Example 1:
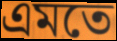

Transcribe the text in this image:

এমতে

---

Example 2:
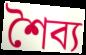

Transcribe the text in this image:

শৈব্য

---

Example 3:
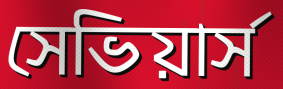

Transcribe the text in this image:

সেভিয়ার্স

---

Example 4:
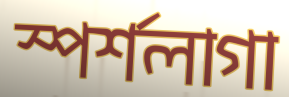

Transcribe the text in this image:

স্পর্শলাগা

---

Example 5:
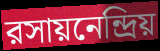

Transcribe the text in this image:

রসায়নেন্দ্রিয়